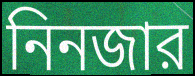
নিনজার